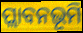
ପ୍ଲାବନଭୂମି